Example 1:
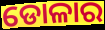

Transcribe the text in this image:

ଡୋଳାର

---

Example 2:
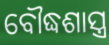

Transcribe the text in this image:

ବୌଦ୍ଧଶାସ୍ତ୍ର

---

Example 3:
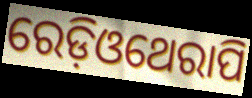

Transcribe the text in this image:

ରେଡ଼ିଓଥେରାପି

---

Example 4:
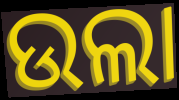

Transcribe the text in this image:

ଉଲା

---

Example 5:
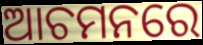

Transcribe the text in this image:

ଆଚମନରେ